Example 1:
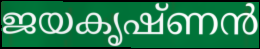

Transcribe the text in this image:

ജയകൃഷ്ണൻ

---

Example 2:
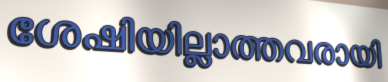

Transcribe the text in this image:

ശേഷിയില്ലാത്തവരായി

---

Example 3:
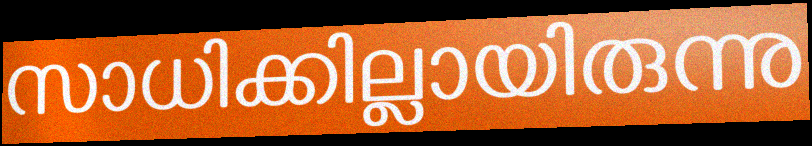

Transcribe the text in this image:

സാധിക്കില്ലായിരുന്നു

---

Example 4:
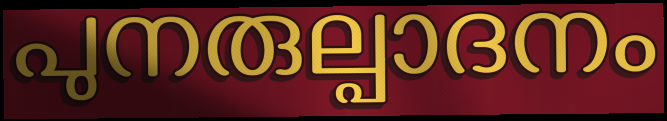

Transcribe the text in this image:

പുനരുല്പാദനം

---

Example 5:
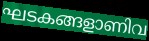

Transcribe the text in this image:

ഘടകങ്ങളാണിവ